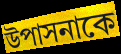
উপাসনাকে